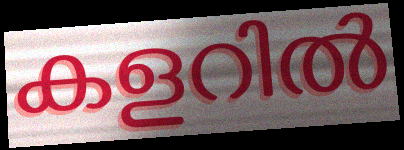
കളറിൽ